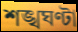
শঙ্খঘণ্টা